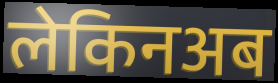
लेकिनअब